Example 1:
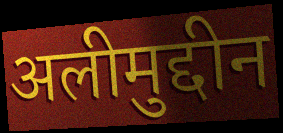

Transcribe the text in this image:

अलीमुद्दीन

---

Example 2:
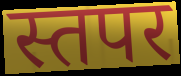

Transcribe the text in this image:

स्तपर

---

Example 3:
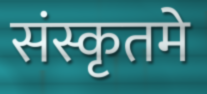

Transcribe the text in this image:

संस्कृतमे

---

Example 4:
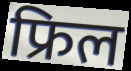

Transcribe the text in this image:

फ्रिल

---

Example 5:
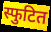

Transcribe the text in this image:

स्फुटित